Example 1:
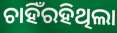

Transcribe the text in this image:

ଚାହିଁରହିଥିଲା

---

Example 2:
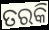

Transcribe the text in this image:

ତରକି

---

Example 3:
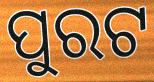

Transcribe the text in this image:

ପୁରଟ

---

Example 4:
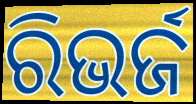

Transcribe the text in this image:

ରିଭର୍ଜ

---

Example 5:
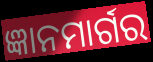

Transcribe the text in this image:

ଜ୍ଞାନମାର୍ଗର